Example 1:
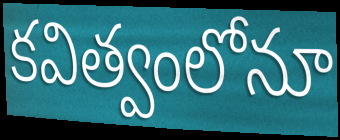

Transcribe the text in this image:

కవిత్వంలోనూ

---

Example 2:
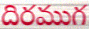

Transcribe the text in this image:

దిరముగ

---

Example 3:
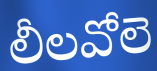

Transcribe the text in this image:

లీలవోలె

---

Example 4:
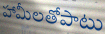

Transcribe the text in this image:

హామీలతోపాటు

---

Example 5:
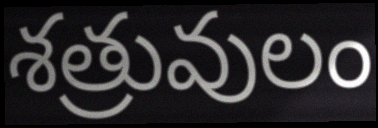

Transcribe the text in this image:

శత్రువులం